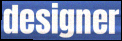
designer